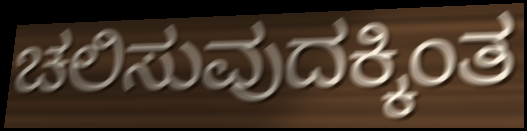
ಚಲಿಸುವುದಕ್ಕಿಂತ